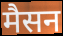
मैसन